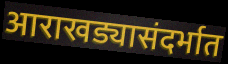
आराखड्यासंदर्भात